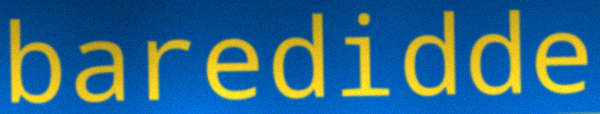
baredidde